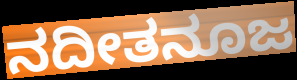
ನದೀತನೂಜ